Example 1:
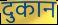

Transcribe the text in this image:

दुकान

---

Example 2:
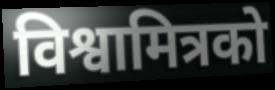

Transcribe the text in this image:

विश्वामित्रको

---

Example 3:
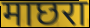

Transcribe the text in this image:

माछरा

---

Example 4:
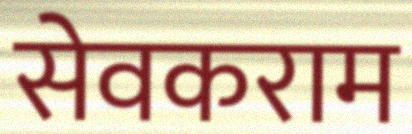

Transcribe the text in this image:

सेवकराम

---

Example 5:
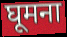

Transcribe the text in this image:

घूमना